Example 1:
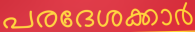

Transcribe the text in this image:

പരദേശക്കാർ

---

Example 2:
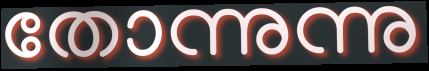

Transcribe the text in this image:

തോന്നുന്നു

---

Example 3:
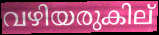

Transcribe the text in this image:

വഴിയരുകില്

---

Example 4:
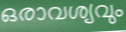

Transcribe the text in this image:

ഒരാവശ്യവും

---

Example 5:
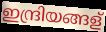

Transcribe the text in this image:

ഇന്ദ്രിയങ്ങള്